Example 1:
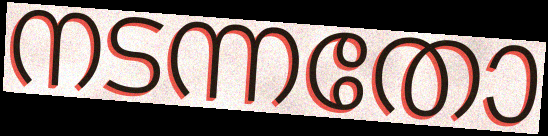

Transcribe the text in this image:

നടന്നതോ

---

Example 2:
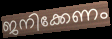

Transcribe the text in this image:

ജനിക്കേണം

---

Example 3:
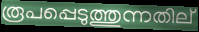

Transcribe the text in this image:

രൂപപ്പെടുത്തുന്നതില്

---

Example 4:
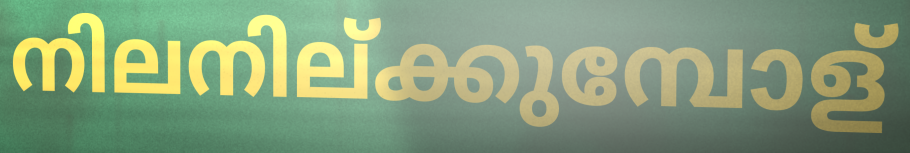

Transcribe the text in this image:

നിലനില്ക്കുമ്പോള്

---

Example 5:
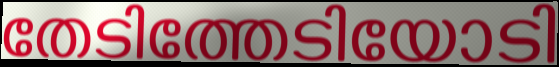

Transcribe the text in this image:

തേടിത്തേടിയോടി